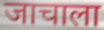
जाचाला